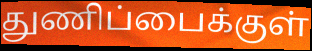
துணிப்பைக்குள்